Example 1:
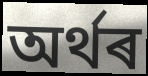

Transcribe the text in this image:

অৰ্থৰ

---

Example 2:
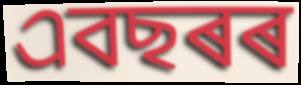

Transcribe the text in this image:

এবছৰৰ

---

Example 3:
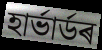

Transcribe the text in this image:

হাৰ্ভাৰ্ডৰ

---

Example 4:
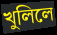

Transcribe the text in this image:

খুলিলে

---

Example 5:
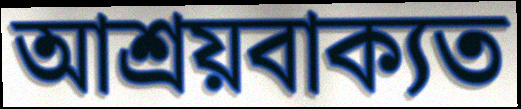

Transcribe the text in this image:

আশ্ৰয়বাক্যত